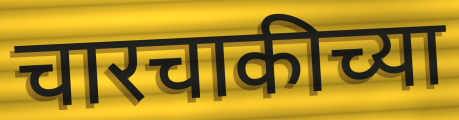
चारचाकीच्या